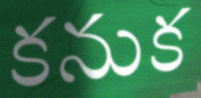
కనుక